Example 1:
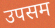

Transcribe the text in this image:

उपसम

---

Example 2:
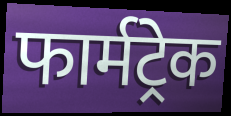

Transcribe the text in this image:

फार्मट्रेक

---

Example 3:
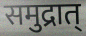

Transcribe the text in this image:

समुद्रात्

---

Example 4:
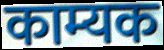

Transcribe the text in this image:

काम्यक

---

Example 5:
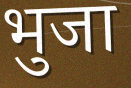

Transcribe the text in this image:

भुजा